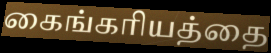
கைங்கரியத்தை